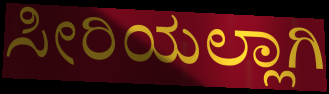
ಸೀರಿಯಲ್ಲಾಗಿ